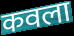
कवला